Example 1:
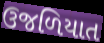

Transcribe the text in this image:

ઉજળિયાત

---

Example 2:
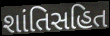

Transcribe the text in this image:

શાંતિસહિત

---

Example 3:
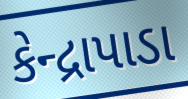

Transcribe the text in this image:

કેન્દ્રાપાડા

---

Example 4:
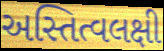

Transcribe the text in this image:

અસ્તિત્વલક્ષી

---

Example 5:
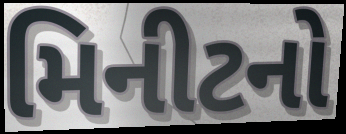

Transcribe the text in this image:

મિનીટનો